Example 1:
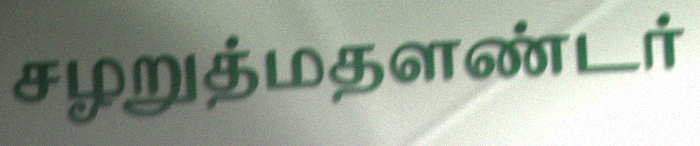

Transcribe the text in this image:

சழறுத்மதளண்டர்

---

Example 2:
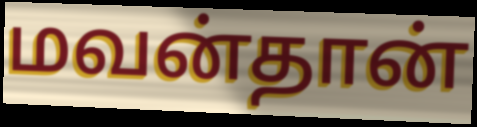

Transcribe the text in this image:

மவன்தான்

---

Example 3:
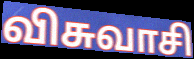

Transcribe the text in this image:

விசுவாசி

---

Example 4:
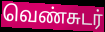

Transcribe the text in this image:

வெண்சுடர்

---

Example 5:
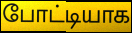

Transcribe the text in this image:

போட்டியாக